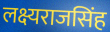
लक्ष्यराजसिंह